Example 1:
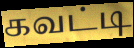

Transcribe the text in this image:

கவட்டி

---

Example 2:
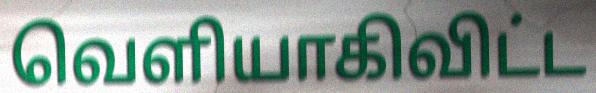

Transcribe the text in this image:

வெளியாகிவிட்ட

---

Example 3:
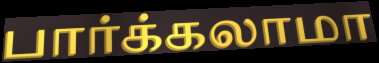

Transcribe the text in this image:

பார்க்கலாமா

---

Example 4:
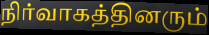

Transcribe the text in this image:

நிர்வாகத்தினரும்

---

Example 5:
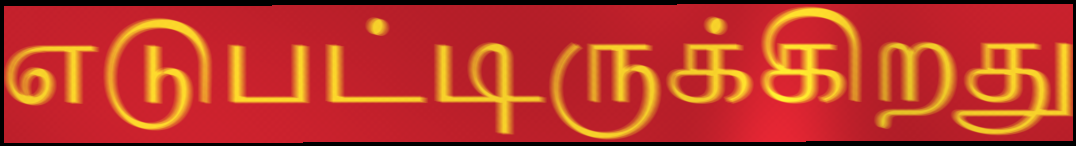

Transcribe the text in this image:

எடுபட்டிருக்கிறது